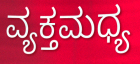
ವ್ಯಕ್ತಮಧ್ಯ